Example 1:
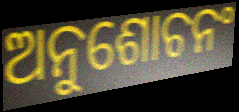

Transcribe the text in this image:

ଅନୁଶୋଚନଂ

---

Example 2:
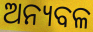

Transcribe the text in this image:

ଅନ୍ୟବଳ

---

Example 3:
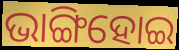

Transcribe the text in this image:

ଭାଙ୍ଗିହୋଇ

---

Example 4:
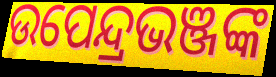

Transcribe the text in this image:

ଉପେନ୍ଦ୍ରଭଞ୍ଜଙ୍କ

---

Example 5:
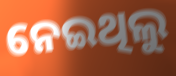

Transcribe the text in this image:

ନେଇଥିଲୁ